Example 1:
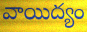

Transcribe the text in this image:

వాయిద్యం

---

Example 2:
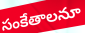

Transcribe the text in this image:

సంకేతాలనూ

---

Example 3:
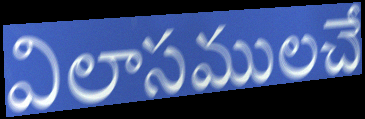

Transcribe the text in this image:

విలాసములచే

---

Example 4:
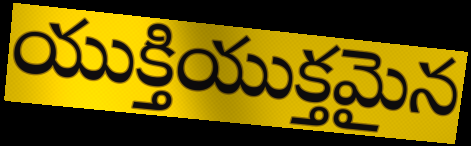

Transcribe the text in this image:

యుక్తియుక్తమైన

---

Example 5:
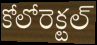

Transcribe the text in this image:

కోలోరెక్టల్